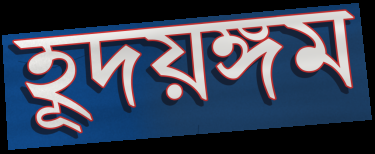
হূদয়ঙ্গম